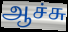
ஆச்சு